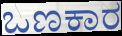
ಒಣಕಾರ